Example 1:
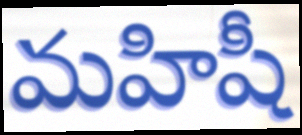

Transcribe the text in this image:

మహిషీ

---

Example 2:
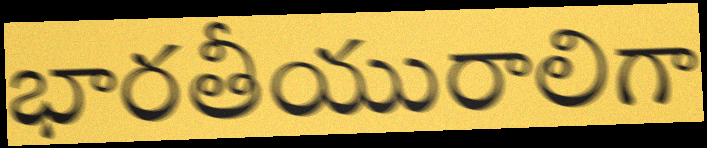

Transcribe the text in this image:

భారతీయురాలిగా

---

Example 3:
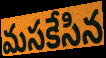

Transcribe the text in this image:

మసకేసిన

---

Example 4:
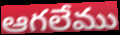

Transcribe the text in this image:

ఆగలేము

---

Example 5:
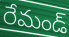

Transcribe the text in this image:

రేమండ్